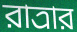
রাত্রার